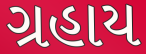
ગ્રહાય